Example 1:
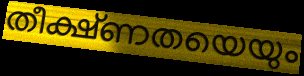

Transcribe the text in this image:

തീക്ഷ്ണതയെയും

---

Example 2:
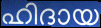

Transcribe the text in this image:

ഹിദായ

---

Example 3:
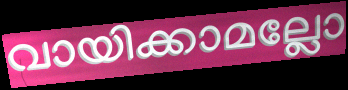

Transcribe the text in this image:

വായിക്കാമല്ലോ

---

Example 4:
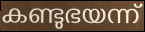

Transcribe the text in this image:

കണ്ടുഭയന്ന്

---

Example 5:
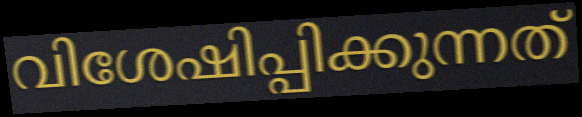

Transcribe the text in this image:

വിശേഷിപ്പിക്കുന്നത്